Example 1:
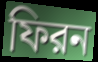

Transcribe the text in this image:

ফিরন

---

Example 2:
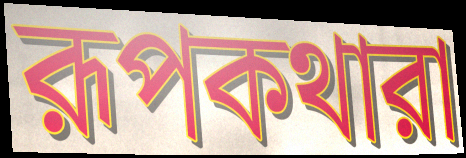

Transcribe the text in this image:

রূপকথারা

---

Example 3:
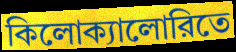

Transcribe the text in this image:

কিলোক্যালোরিতে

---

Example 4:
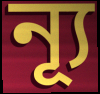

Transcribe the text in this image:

ন্যূ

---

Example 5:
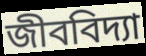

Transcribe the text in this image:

জীববিদ্যা